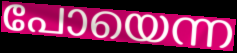
പോയെന്ന